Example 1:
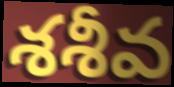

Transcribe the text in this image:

శశీవ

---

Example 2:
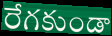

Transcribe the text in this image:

రేగకుండా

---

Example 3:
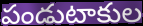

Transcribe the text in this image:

పండుటాకుల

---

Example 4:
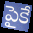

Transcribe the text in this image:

పైకే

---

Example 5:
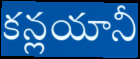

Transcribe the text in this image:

కన్లయానీ